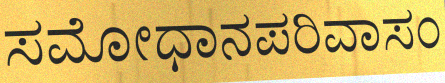
ಸಮೋಧಾನಪರಿವಾಸಂ